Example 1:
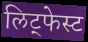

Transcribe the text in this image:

लिट्फेस्ट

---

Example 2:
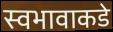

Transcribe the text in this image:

स्वभावाकडे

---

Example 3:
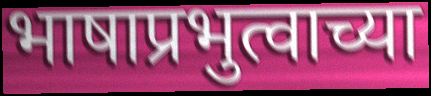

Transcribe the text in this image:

भाषाप्रभुत्वाच्या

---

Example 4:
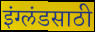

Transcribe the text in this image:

इंग्लंडसाठी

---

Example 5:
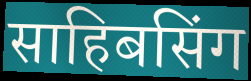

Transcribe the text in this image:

साहिबसिंग